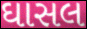
ઘાસલ